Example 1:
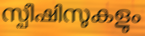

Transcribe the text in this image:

സ്പീഷിസുകളും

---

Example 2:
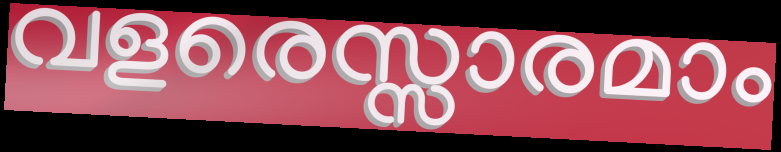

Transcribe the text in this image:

വളരെസ്സാരമാം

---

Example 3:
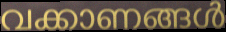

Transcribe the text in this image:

വക്കാണങ്ങൾ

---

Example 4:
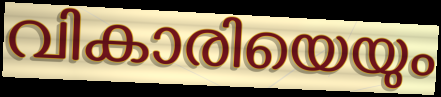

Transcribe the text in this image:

വികാരിയെയും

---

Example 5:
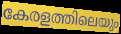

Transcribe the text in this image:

കേരളത്തിലെയും